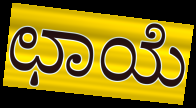
ಛಾಯೆ